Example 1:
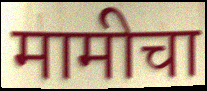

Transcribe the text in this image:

मामीचा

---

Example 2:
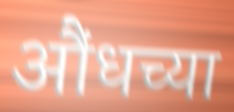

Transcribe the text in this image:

औंधच्या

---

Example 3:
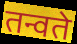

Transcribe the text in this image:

तन्वते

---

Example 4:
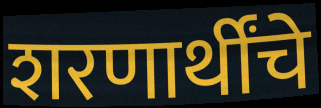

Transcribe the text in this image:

शरणार्थींचे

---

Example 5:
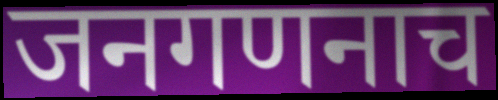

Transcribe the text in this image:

जनगणनाच